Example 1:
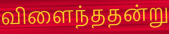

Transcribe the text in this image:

விளைந்ததன்று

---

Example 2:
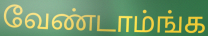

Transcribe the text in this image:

வேண்டாம்ங்க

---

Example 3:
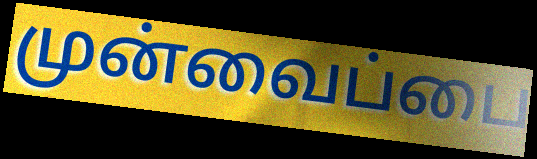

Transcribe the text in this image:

முன்வைப்பை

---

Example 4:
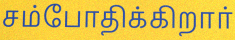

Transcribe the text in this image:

சம்போதிக்கிறார்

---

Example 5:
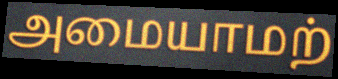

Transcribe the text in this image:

அமையாமற்